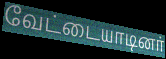
வேட்டையாடினர்